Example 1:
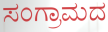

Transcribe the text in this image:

ಸಂಗ್ರಾಮದ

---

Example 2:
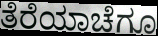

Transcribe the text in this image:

ತೆರೆಯಾಚೆಗೂ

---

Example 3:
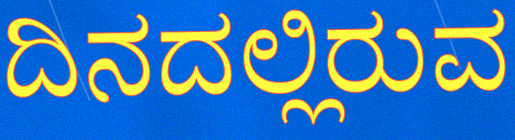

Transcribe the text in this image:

ದಿನದಲ್ಲಿರುವ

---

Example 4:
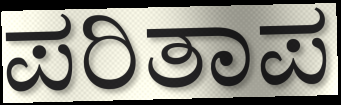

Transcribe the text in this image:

ಪರಿತಾಪ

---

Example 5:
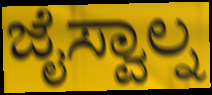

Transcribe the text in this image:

ಜೈಸ್ವಾಲ್ನ